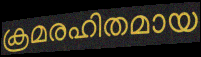
ക്രമരഹിതമായ